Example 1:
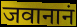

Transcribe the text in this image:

जवानानं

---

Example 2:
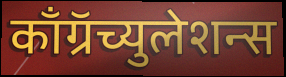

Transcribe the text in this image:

काँग्रॅच्युलेशन्स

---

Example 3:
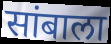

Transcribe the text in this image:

सांबाला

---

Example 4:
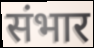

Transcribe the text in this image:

संभार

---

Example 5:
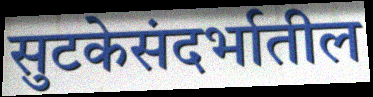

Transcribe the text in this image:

सुटकेसंदर्भातील